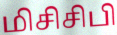
மிசிசிபி